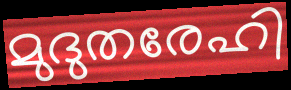
മുദുതരേഹി